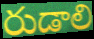
రుడాలి